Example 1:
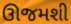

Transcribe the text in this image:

ઊજમશી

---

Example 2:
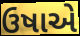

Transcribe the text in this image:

ઉષાએ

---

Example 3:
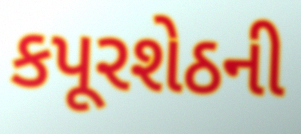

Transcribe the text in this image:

કપૂરશેઠની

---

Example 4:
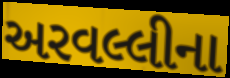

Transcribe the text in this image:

અરવલ્લીના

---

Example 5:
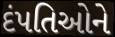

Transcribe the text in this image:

દંપતિઓને